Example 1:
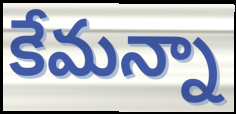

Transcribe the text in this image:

కేమన్నా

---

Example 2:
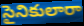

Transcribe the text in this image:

సైనికులారా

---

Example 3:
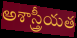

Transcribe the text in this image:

అశాస్త్రీయత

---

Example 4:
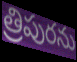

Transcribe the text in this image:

త్రిపురను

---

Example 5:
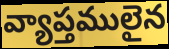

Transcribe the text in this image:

వ్యాప్తములైన